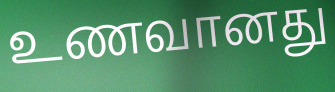
உணவானது